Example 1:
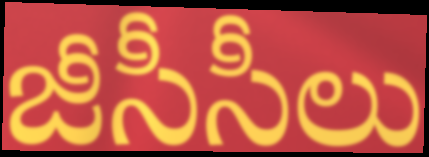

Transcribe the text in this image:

జీసీసీలు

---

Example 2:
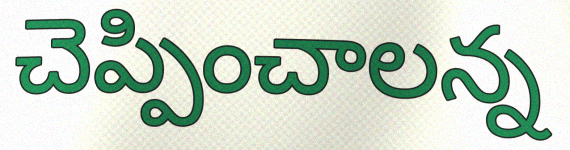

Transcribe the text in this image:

చెప్పించాలన్న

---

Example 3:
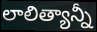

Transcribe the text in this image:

లాలిత్యాన్నీ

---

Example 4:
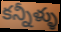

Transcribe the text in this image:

కన్నీళ్ళు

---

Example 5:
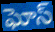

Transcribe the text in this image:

ఘోస్